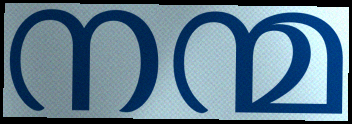
നന്മ